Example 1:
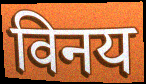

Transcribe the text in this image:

विनय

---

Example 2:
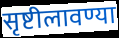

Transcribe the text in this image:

सृष्टीलावण्या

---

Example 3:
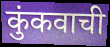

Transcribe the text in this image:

कुंकवाची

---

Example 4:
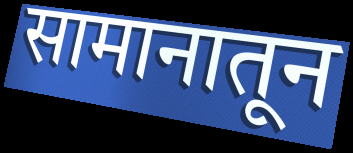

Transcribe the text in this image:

सामानातून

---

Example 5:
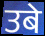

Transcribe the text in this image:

उबे